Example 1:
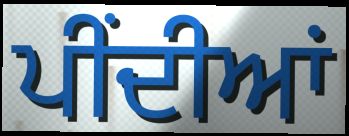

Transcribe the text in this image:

ਪੀਂਦੀਆਂ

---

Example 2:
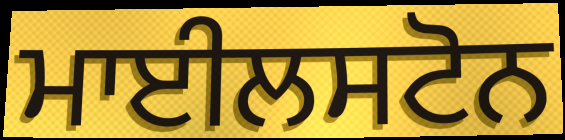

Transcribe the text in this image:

ਮਾਈਲਸਟੋਨ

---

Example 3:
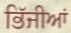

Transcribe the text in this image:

ਭਿੱਜੀਆਂ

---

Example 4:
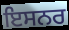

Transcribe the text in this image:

ਇਸਨਰ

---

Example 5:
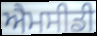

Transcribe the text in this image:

ਐਮਸੀਡੀ